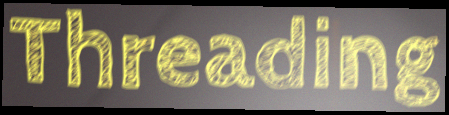
Threading